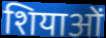
शियाओं